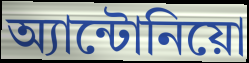
অ্যান্টোনিয়ো